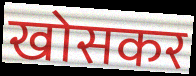
खोसकर